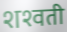
शश्वती